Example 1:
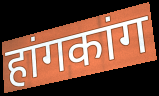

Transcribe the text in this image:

हांगकांग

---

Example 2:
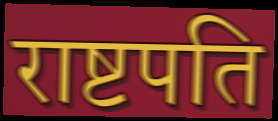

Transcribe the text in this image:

राष्टपति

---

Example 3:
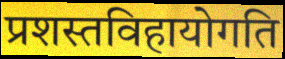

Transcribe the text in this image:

प्रशस्तविहायोगति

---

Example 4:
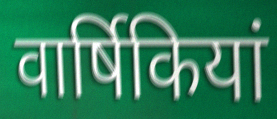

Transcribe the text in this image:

वार्षिकियां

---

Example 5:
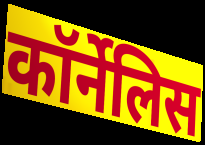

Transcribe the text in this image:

कॉर्नेलिस